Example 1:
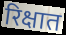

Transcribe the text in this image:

रिक्षात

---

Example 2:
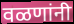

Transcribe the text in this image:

वळणांनी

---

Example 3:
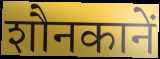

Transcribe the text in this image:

शौनकानें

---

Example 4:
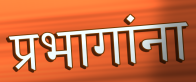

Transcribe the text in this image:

प्रभागांना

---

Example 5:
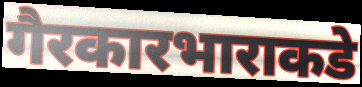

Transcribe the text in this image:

गैरकारभाराकडे